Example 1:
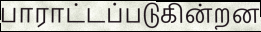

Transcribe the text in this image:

பாராட்டப்படுகின்றன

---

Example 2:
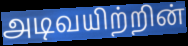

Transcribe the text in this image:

அடிவயிற்றின்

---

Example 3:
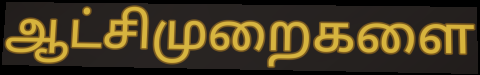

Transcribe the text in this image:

ஆட்சிமுறைகளை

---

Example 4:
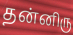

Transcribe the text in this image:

தன்னிரு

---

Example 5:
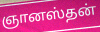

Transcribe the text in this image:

ஞானஸ்தன்